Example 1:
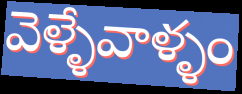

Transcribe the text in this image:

వెళ్ళేవాళ్ళం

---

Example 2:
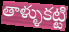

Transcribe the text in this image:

తాళ్ళుకట్టి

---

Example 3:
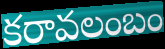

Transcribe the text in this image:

కరావలంబం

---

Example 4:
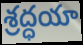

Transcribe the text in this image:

శ్రద్ధయా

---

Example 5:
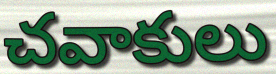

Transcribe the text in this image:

చవాకులు